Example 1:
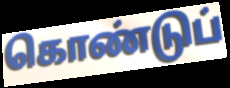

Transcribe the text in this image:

கொண்டுப்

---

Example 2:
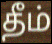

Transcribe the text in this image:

தீம்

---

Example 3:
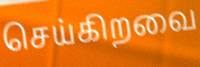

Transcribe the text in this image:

செய்கிறவை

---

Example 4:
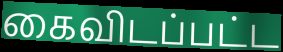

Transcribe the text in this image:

கைவிடப்பட்ட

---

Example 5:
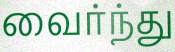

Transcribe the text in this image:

வைர்ந்து